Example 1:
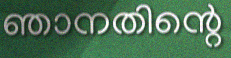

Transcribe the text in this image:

ഞാനതിന്റെ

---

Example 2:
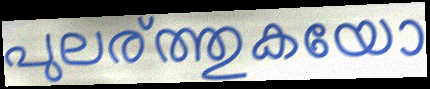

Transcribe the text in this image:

പുലര്ത്തുകയോ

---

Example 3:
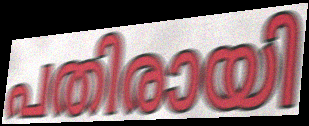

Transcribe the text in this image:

പതിരായി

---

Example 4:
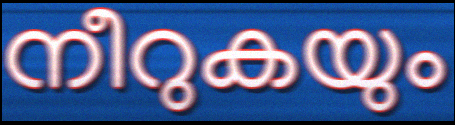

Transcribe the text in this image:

നീറുകയും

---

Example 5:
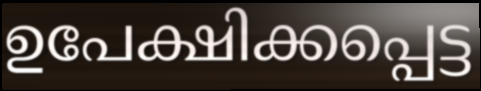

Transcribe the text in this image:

ഉപേക്ഷിക്കപ്പെട്ട